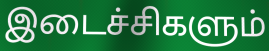
இடைச்சிகளும்